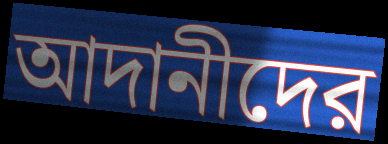
আদানীদের